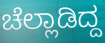
ಚೆಲ್ಲಾಡಿದ್ದ